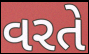
વરતે